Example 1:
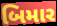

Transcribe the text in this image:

બિમાર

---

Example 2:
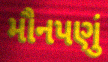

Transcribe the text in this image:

મૌનપણું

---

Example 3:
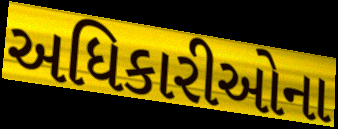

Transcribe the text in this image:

અધિકારીઓના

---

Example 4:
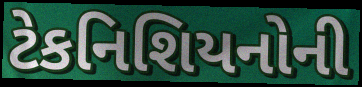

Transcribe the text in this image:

ટેકનિશિયનોની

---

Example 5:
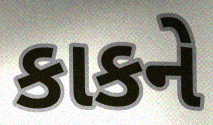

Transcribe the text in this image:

કાકને